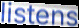
listens